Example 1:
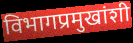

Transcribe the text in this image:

विभागप्रमुखांशी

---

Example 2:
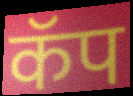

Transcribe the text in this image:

कॅप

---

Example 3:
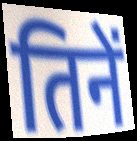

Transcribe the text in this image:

तिनें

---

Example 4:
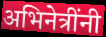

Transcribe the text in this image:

अभिनेत्रींनी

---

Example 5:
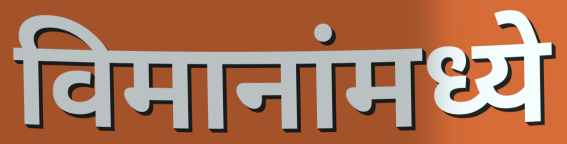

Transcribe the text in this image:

विमानांमध्ये